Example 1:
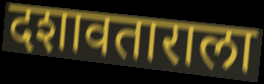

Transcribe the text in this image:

दशावताराला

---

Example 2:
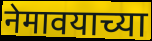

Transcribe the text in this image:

नेमावयाच्या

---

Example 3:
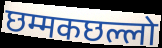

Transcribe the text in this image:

छम्मकछल्लो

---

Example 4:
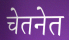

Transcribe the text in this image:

चेतनेत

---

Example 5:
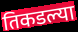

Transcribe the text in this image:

तिकडल्या